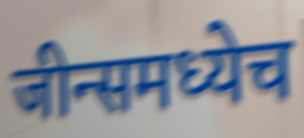
जीन्समध्येच